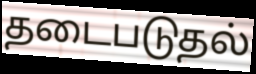
தடைபடுதல்